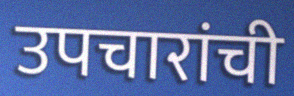
उपचारांची